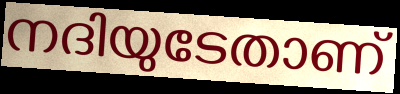
നദിയുടേതാണ്